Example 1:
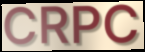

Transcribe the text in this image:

CRPC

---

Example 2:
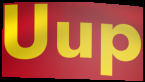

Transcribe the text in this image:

Uup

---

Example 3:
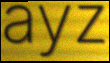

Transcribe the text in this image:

ayz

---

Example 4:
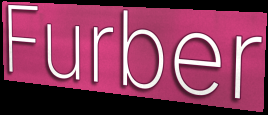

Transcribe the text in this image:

Furber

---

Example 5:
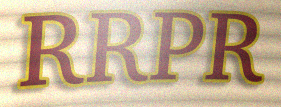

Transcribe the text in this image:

RRPR